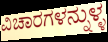
ವಿಚಾರಗಳನ್ನುಳ್ಳ